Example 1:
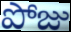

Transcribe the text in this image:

పోజు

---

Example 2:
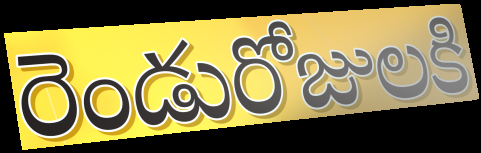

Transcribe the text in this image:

రెండురోజులకి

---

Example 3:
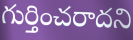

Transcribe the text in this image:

గుర్తించరాదని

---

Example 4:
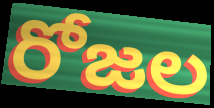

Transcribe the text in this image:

రోజల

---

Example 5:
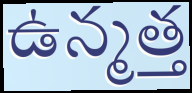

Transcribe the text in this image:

ఉన్మత్త